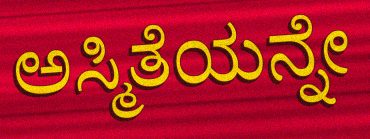
ಅಸ್ಮಿತೆಯನ್ನೇ